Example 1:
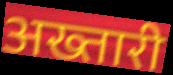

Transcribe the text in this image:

अख्तारी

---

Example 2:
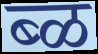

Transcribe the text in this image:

ब्ळ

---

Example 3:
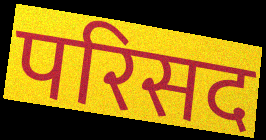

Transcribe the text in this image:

परिसद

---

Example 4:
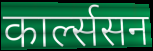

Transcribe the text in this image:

कार्ल्ससन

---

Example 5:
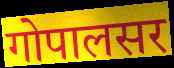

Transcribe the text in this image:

गोपालसर